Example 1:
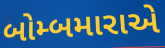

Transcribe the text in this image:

બોમ્બમારાએ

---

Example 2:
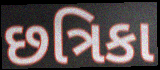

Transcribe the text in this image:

છત્રિકા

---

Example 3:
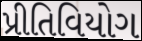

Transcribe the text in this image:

પ્રીતિવિયોગ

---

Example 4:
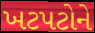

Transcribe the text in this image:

ખટપટોને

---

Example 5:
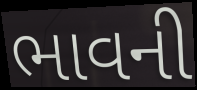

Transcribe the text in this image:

ભાવની